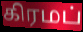
கிரமப்